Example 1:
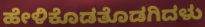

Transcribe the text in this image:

ಹೇಳಿಕೊಡತೊಡಗಿದಳು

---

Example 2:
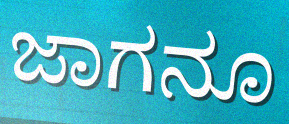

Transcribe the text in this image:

ಜಾಗನೂ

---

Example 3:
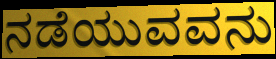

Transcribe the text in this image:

ನಡೆಯುವವನು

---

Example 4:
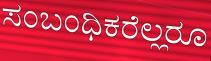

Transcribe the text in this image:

ಸಂಬಂಧಿಕರೆಲ್ಲರೂ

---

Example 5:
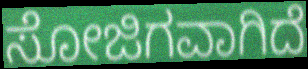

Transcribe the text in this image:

ಸೋಜಿಗವಾಗಿದೆ